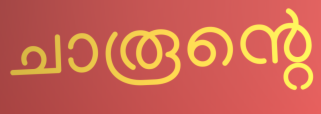
ചാരൂന്റെ